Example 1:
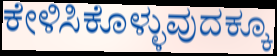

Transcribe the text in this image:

ಕೇಳಿಸಿಕೊಳ್ಳುವುದಕ್ಕೂ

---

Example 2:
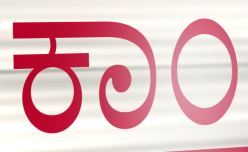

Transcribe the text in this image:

ಕಾಂ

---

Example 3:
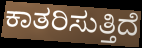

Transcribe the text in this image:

ಕಾತರಿಸುತ್ತಿದೆ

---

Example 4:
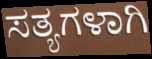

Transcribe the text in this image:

ಸತ್ಯಗಳಾಗಿ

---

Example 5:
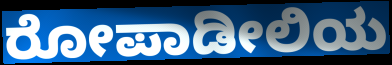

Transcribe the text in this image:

ರೋಪಾಡೀಲಿಯ